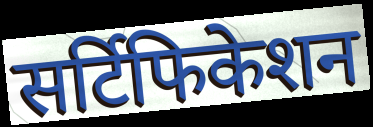
सर्टिफिकेशन